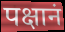
पक्षानं